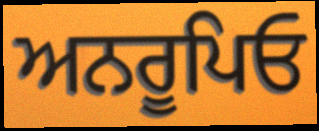
ਅਨਰੂਪਿਓ